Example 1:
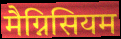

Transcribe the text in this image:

मैग्निसियम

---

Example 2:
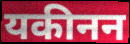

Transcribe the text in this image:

यकीनन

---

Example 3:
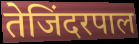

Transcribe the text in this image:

तेजिंदरपाल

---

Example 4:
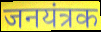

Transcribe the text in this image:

जनयंत्रक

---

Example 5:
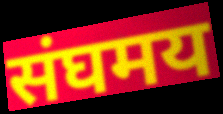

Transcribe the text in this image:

संघमय